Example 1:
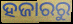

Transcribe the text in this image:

ହଜାରରୁ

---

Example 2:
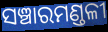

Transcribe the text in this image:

ସଞ୍ଚାରମଣ୍ଡଳୀ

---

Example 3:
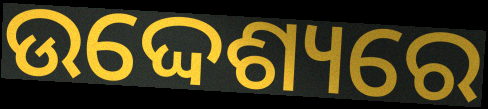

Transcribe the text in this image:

ଉଦ୍ଦେଶ୍ୟରେ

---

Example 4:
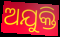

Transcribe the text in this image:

ଅଯୁକ୍ତି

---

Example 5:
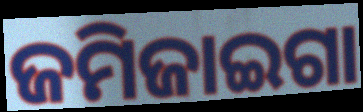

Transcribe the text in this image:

ଜମିଜାଇଗା